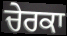
ਚੇਰਕਾ